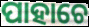
ପାହାଚେ